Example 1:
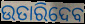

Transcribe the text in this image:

ଉତାରିଦେବ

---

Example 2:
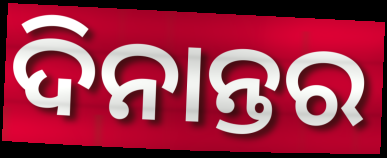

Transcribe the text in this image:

ଦିନାନ୍ତର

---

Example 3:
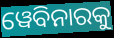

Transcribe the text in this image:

ୱେବିନାରକୁ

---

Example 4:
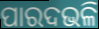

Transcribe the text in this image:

ପାରଦଭଳି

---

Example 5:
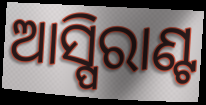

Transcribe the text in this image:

ଆସ୍ପିରାଣ୍ଟ